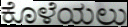
ಕೊಳೆಯಲು